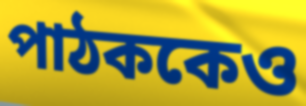
পাঠককেও